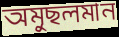
অমুছলমান